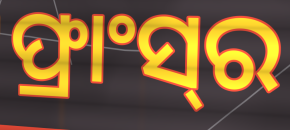
ଫ୍ରାଂସ୍‍ର